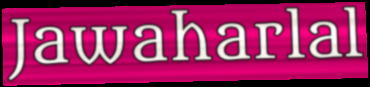
Jawaharlal